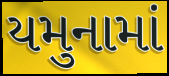
યમુનામાં